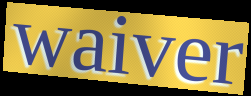
waiver